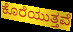
ಕೊರೆಯುತ್ತವೆ